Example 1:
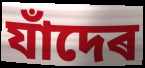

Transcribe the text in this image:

যাঁদেৰ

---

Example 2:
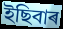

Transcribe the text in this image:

ইছিবাৰ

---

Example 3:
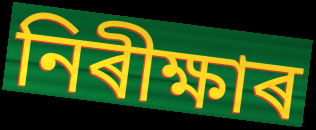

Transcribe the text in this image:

নিৰীক্ষাৰ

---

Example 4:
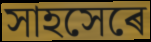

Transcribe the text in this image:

সাহসেৰে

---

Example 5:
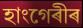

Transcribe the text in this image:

হাংগেৰীৰ